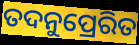
ତଦନୁପ୍ରେରିତ